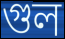
গুল